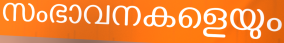
സംഭാവനകളെയും